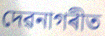
দেৱনাগৰীত